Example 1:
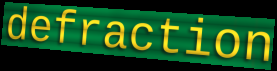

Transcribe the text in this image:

defraction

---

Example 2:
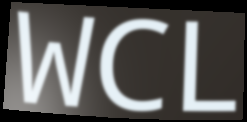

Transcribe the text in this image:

WCL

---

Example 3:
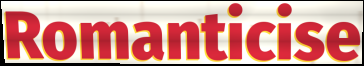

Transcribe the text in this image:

Romanticise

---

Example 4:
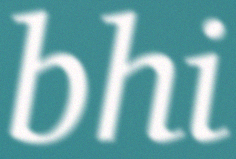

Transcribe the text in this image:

bhi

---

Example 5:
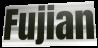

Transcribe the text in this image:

Fujian